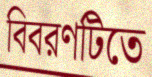
বিবরণটিতে